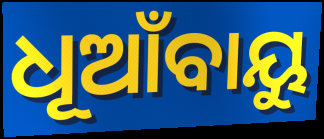
ଧୂଆଁବାୟୁ